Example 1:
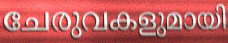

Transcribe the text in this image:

ചേരുവകളുമായി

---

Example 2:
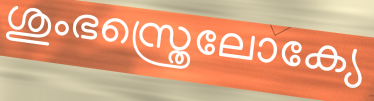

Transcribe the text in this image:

ശുംഭസ്ത്രെലോക്യേ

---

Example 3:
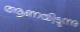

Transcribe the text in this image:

ആണയിടുന്നു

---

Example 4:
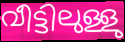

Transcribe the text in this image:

വീട്ടിലുള്ളു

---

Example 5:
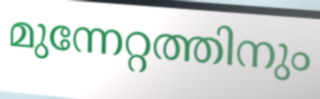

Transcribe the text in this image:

മുന്നേറ്റത്തിനും